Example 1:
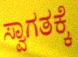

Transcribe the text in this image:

ಸ್ವಾಗತಕ್ಕೆ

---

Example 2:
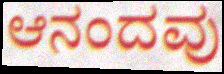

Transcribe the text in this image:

ಆನಂದವು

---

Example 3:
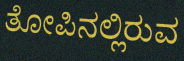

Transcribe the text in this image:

ತೋಪಿನಲ್ಲಿರುವ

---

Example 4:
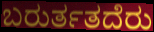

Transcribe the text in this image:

ಬರುರ್ತತದೆರು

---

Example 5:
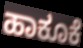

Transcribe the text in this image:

ಹಾಕೂಕೆ